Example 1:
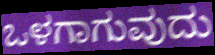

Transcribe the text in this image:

ಒಳಗಾಗುವುದು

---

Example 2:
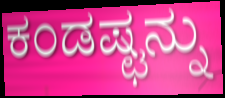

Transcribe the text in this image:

ಕಂಡಷ್ಟನ್ನು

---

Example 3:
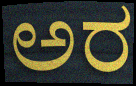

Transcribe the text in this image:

ಅರ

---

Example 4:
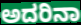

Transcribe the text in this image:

ಅದರಿನಾ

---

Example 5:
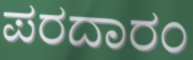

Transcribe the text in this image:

ಪರದಾರಂ